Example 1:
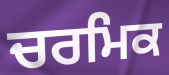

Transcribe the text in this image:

ਚਰਮਿਕ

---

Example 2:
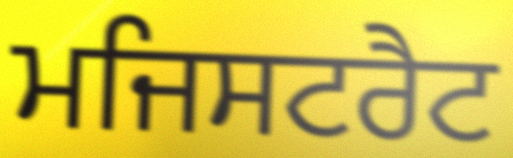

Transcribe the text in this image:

ਮਜਿਸਟਰੈਟ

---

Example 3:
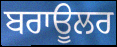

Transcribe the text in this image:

ਬਰਾਊਲਰ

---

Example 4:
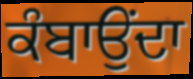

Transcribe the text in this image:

ਕੰਬਾਉਂਦਾ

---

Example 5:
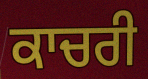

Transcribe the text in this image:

ਕਾਚਰੀ